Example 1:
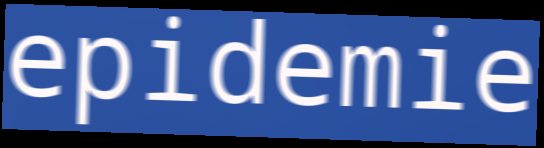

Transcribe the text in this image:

epidemie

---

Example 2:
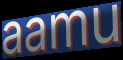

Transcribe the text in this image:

aamu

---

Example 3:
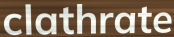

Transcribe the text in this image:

clathrate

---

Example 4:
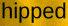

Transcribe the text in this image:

hipped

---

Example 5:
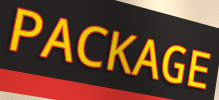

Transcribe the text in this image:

PACKAGE